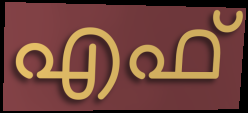
എഫ്